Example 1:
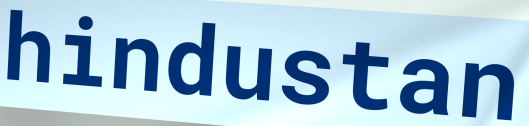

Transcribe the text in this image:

hindustan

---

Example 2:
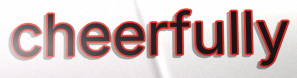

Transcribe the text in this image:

cheerfully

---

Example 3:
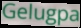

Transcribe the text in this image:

Gelugpa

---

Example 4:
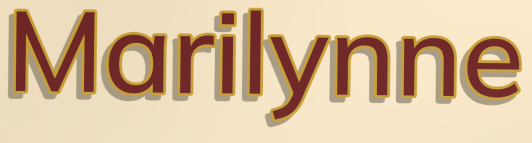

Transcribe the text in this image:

Marilynne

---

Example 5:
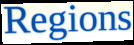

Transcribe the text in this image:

Regions